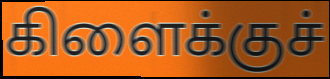
கிளைக்குச்